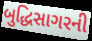
બુદ્ધિસાગરની